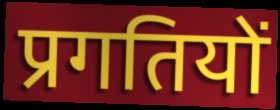
प्रगतियों